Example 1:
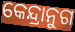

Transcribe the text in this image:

କେନ୍ଦ୍ରାନୁଗ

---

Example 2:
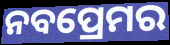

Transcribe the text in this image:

ନବପ୍ରେମର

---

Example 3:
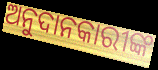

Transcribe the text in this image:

ଅନୁଦାନକାରୀଙ୍କ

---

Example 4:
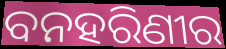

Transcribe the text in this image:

ବନହରିଣୀର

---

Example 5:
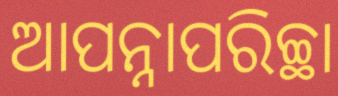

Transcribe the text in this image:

ଆପନ୍ନାପରିଚ୍ଛା